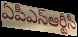
ఏపీఎస్ఆర్టీసీ